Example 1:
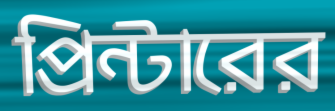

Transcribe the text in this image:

প্রিন্টারের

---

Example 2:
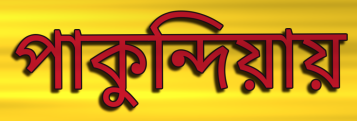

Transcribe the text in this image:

পাকুন্দিয়ায়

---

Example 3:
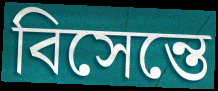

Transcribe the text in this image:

বিসেন্তে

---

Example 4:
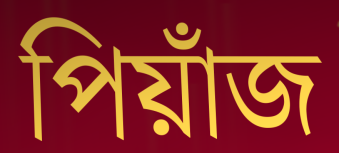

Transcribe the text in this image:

পিয়াঁজ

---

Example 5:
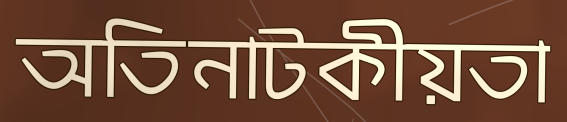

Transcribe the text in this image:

অতিনাটকীয়তা